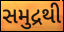
સમુદ્રથી